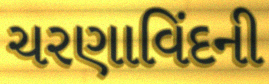
ચરણાવિંદની